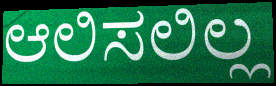
ಆಲಿಸಲಿಲ್ಲ